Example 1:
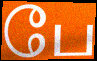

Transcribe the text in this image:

பே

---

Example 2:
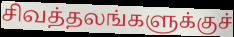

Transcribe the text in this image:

சிவத்தலங்களுக்குச்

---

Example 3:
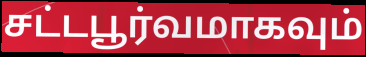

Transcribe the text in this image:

சட்டபூர்வமாகவும்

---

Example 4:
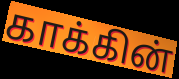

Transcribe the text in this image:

காக்கின்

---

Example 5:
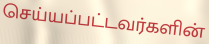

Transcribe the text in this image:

செய்யப்பட்டவர்களின்